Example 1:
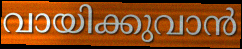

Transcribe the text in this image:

വായിക്കുവാൻ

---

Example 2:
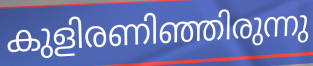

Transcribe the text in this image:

കുളിരണിഞ്ഞിരുന്നു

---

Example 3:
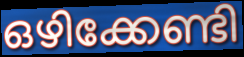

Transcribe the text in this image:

ഒഴിക്കേണ്ടി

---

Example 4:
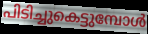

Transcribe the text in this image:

പിടിച്ചുകെട്ടുമ്പോൾ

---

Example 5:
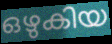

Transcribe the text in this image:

ഒഴുകിയ